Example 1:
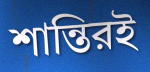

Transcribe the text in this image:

শান্তিরই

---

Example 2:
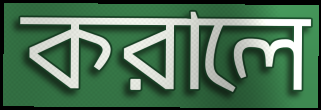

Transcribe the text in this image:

করালে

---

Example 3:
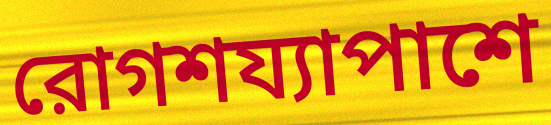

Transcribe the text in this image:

রোগশয্যাপাশে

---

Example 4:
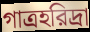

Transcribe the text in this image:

গাত্রহরিদ্রা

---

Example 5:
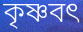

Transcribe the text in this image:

কৃষ্ণবৎ